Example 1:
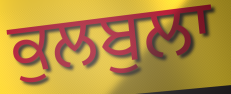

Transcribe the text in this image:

ਕੁਲਬੁਲਾ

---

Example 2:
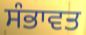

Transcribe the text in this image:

ਸੰਭਾਵਤ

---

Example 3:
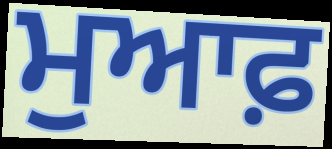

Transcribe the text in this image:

ਮੁਆਫ਼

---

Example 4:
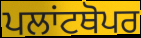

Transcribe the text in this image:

ਪਲਾਂਟਥੋਪਰ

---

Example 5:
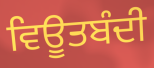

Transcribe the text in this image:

ਵਿਊਤਬੰਦੀ